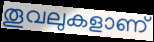
തൂവലുകളാണ്